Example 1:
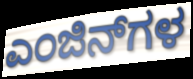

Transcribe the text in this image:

ಎಂಜಿನ್‌ಗಳ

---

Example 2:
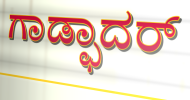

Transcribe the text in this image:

ಗಾಡ್ಫಾದರ್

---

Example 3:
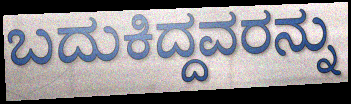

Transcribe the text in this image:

ಬದುಕಿದ್ದವರನ್ನು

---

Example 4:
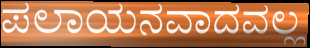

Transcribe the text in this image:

ಪಲಾಯನವಾದವಲ್ಲ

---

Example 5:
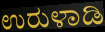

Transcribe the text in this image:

ಉರುಳಾಡಿ